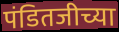
पंडितजीच्या